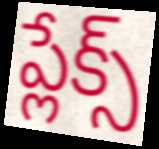
ప్లేక్స్